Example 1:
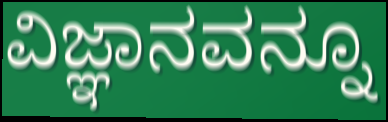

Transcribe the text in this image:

ವಿಜ್ಞಾನವನ್ನೂ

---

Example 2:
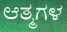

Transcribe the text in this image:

ಆತ್ಮಗಳ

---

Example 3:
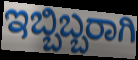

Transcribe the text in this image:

ಇಬ್ಬಿಬ್ಬರಾಗಿ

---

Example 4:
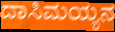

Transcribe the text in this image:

ದಾಸಿಮಯ್ಯನ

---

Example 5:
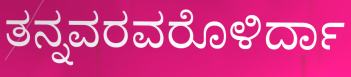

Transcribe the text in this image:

ತನ್ನವರವರೊಳಿರ್ದಾ